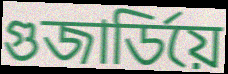
গুজাৰ্ডিয়ে